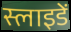
स्लाइडें